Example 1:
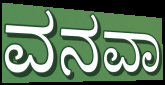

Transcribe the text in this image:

ವನವಾ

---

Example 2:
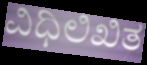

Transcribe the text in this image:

ವಿಧಿಲಿಖಿತ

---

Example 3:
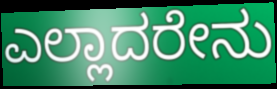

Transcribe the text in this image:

ಎಲ್ಲಾದರೇನು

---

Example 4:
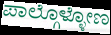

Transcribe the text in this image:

ಪಾಲ್ಗೊಳ್ಳೋಣ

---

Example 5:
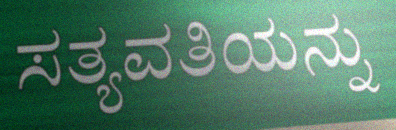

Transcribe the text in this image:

ಸತ್ಯವತಿಯನ್ನು